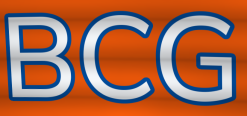
BCG